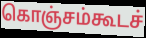
கொஞ்சம்கூடச்